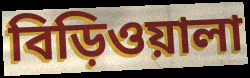
বিড়িওয়ালা